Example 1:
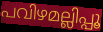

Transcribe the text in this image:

പവിഴമല്ലിപ്പൂ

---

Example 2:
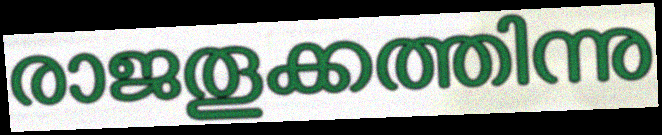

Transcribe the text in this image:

രാജതൂക്കത്തിന്നു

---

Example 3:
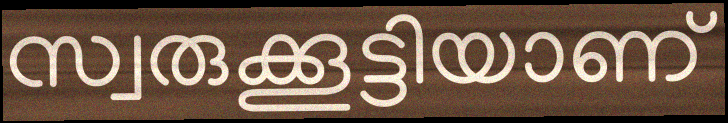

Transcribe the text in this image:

സ്വരുക്കൂട്ടിയാണ്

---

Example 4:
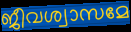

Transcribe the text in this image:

ജീവശ്വാസമേ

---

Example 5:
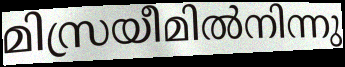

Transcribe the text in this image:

മിസ്രയീമിൽനിന്നു